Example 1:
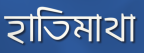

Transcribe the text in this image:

হাতিমাথা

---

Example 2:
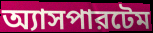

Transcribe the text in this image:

অ্যাসপারটেম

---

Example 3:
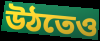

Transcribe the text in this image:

উঠতেও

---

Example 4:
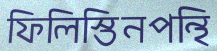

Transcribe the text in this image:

ফিলিস্তিনপন্থি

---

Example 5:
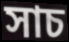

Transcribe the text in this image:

সাচ